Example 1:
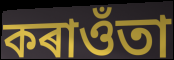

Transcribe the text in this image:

কৰাওঁতা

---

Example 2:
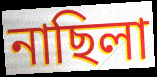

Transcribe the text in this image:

নাছিলা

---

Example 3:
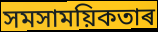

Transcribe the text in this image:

সমসাময়িকতাৰ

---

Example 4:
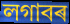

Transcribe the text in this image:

লগাবৰ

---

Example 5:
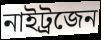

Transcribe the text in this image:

নাইট্ৰজেন